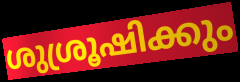
ശുശ്രൂഷിക്കും